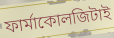
ফার্মাকোলজিটাই